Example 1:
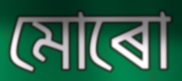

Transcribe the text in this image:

মোৰো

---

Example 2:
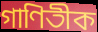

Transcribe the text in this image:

গাণিতীক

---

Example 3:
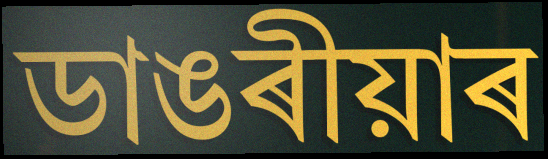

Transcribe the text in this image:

ডাঙৰীয়াৰ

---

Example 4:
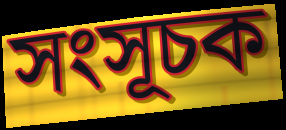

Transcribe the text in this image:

সংসূচক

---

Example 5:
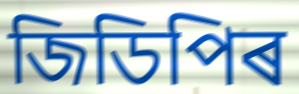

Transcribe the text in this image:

জিডিপিৰ